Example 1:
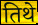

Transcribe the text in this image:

तिथे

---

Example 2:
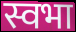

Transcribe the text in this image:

स्वभा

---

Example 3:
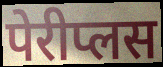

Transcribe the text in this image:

पेरीप्लस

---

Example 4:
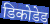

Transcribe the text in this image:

डिकोडेड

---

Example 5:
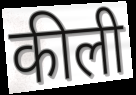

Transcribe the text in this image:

कीली